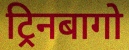
ट्रिनबागो